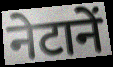
नेटानें